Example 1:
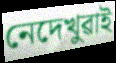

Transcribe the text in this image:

নেদেখুৱাই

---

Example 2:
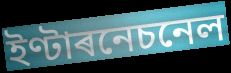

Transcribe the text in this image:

ইণ্টাৰনেচনেল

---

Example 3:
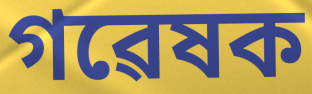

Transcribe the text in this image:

গৱেষক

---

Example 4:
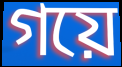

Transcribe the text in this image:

গয়ে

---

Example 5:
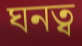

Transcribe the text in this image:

ঘনত্ব